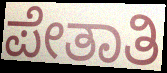
ಪೇತಾತಿ